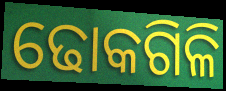
ଢୋକଗିଳି